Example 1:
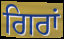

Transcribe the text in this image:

ਗਿਰਾਂ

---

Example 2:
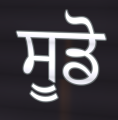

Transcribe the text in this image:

ਸੂਡੋ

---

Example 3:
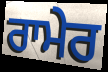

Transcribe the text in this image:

ਰਾਮੇਰ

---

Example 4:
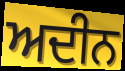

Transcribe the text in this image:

ਅਦੀਨ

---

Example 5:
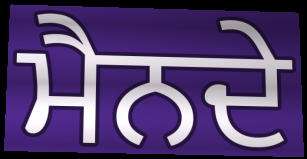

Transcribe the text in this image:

ਮੈਨਦੇ